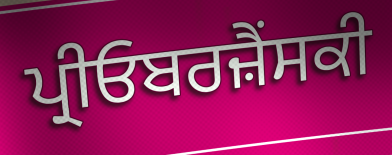
ਪ੍ਰੀਓਬਰਜ਼ੈਂਸਕੀ